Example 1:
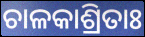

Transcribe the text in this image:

ଚାଳକାଶ୍ରିତାଃ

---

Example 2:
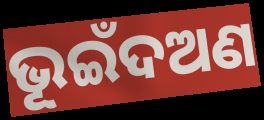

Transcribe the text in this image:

ଭୂଇଁଦଅଣ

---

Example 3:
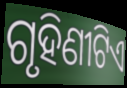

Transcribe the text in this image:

ଗୃହିଣୀଟିଏ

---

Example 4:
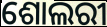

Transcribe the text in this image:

ଶୋଲରୀ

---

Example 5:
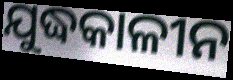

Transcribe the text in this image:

ଯୁଦ୍ଧକାଳୀନ